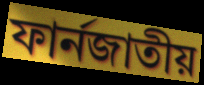
ফার্নজাতীয়